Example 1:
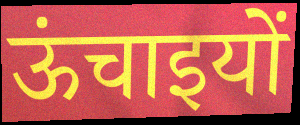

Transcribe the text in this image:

ऊंचाइयों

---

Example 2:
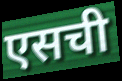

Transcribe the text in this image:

एसची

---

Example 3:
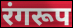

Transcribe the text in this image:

रंगरूप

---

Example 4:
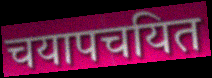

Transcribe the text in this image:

चयापचयित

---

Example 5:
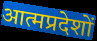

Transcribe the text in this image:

आत्मप्रदेशों